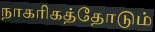
நாகரிகத்தோடும்